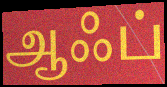
ஆஃப்